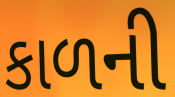
કાળની